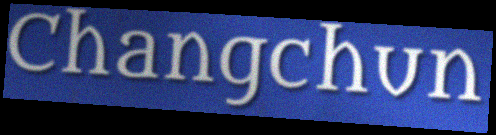
Changchun